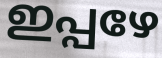
ഇപ്പഴേ